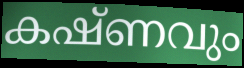
കഷ്ണവും